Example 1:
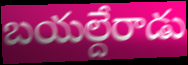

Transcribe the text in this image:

బయల్దేరాడు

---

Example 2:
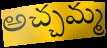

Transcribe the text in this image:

అచ్చమ్మ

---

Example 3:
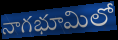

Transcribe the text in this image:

నాగభూమిలో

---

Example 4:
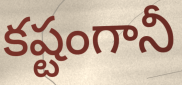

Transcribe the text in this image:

కష్టంగానీ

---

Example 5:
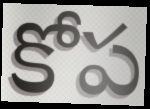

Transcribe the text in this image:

కోప